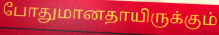
போதுமானதாயிருக்கும்